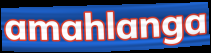
amahlanga